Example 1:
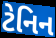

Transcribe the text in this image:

ટેનિન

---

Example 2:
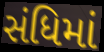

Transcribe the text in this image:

સંધિમાં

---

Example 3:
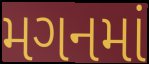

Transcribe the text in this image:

મગનમાં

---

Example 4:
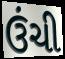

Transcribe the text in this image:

ઉંચી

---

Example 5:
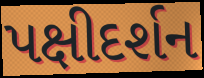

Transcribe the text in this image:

પક્ષીદર્શન